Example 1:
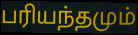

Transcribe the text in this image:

பரியந்தமும்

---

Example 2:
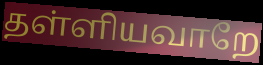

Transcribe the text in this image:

தள்ளியவாறே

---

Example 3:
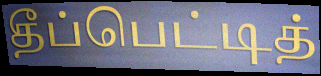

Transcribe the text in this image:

தீப்பெட்டித்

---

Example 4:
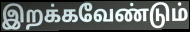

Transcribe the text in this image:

இறக்கவேண்டும்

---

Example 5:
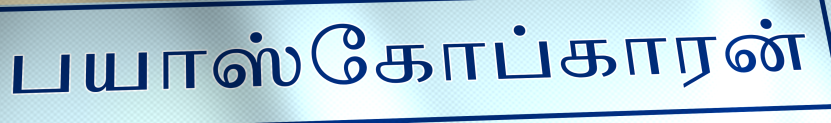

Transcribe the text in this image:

பயாஸ்கோப்காரன்